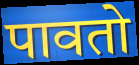
पावतो